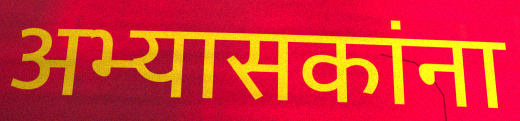
अभ्यासकांना